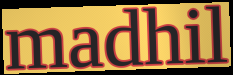
madhil